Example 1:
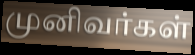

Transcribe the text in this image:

முனிவர்கள்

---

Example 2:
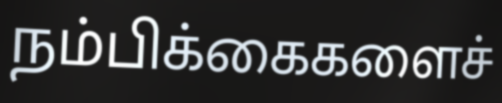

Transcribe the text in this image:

நம்பிக்கைகளைச்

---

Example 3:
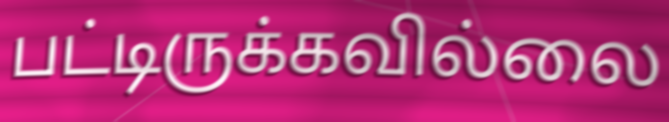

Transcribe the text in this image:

பட்டிருக்கவில்லை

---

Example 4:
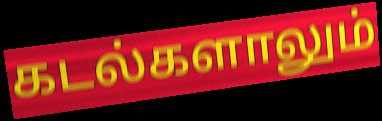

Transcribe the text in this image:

கடல்களாலும்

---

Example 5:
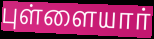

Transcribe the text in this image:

புள்ளையார்